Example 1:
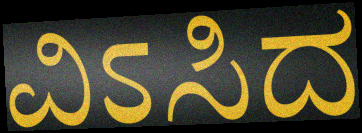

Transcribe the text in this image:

ವಿಽಸಿದ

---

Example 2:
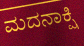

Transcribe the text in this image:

ಮದನಾಕ್ಷಿ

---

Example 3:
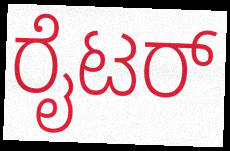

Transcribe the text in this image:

ರೈಟರ್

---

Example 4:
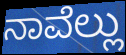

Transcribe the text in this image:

ನಾವೆಲ್ಲು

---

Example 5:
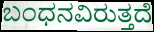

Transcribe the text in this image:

ಬಂಧನವಿರುತ್ತದೆ